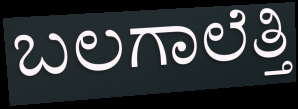
ಬಲಗಾಲೆತ್ತಿ